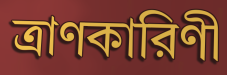
ত্রাণকারিণী